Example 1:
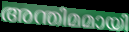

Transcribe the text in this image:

അന്തിമമായി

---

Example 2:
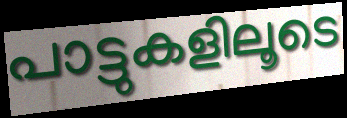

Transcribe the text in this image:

പാട്ടുകളിലൂടെ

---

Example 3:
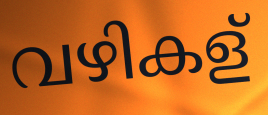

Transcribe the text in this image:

വഴികള്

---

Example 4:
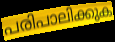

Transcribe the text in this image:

പരിപാലിക്കുക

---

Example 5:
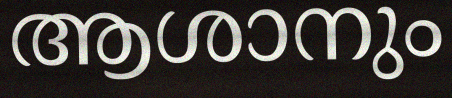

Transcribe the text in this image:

ആശാനും